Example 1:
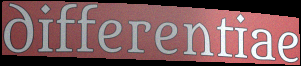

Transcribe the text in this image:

differentiae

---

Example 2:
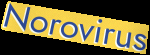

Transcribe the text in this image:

Norovirus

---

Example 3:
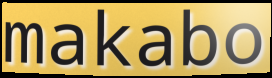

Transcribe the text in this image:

makabo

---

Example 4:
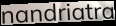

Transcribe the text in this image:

nandriatra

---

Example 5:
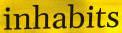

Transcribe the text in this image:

inhabits